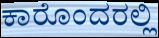
ಕಾರೊಂದರಲ್ಲಿ